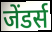
जेंडर्स